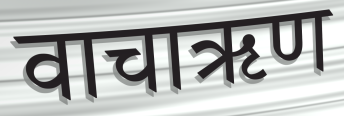
वाचाऋण